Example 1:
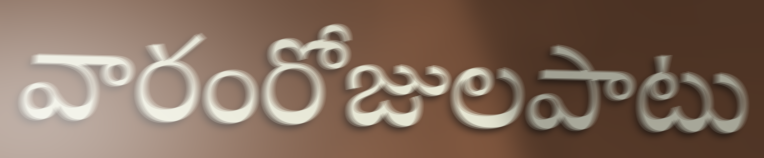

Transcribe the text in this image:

వారంరోజులపాటు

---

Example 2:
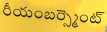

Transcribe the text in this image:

రీయంబర్స్మెంట్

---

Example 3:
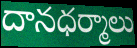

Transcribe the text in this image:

దానధర్మాలు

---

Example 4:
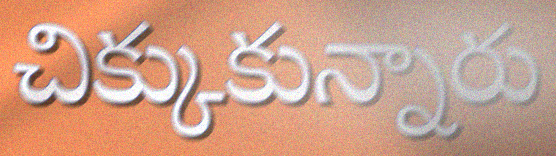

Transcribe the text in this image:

చిక్కుకున్నారు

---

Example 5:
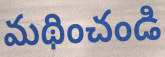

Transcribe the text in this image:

మథించండి